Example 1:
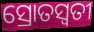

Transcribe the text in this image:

ସ୍ରୋତସ୍ଵତୀ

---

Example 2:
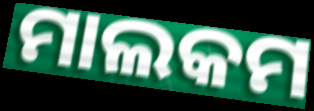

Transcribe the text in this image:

ମାଲକମ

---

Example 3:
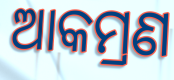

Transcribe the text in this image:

ଆକମ୍ରଣ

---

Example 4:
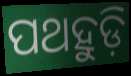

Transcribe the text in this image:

ପଥହୁଡ଼ି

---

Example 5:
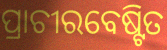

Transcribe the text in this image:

ପ୍ରାଚୀରବେଷ୍ଟିତ